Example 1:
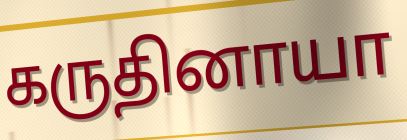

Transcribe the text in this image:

கருதினாயா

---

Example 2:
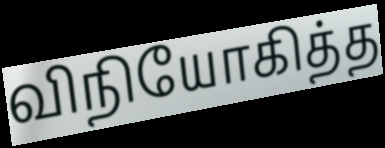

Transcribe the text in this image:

விநியோகித்த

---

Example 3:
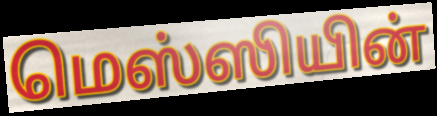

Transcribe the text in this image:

மெஸ்ஸியின்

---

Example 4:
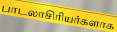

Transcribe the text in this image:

பாடலாசிரியர்களாக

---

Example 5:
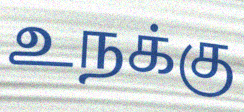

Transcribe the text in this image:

உநக்கு